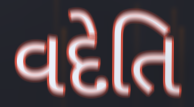
વદેતિ